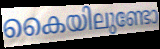
കൈയിലുണ്ടോ